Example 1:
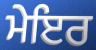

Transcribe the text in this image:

ਮੇਇਰ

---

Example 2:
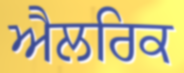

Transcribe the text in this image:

ਐਲਰਿਕ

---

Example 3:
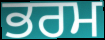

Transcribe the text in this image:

ਭਰਮ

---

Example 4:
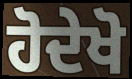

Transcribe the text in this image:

ਹੋਦੇਖੋ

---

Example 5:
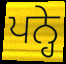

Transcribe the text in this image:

ਪਨ੍ਹੇ